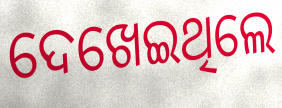
ଦେଖେଇଥିଲେ